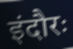
इंदौरः